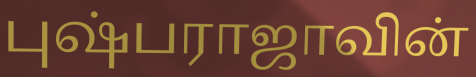
புஷ்பராஜாவின்